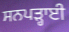
ਸਨਪੜ੍ਹਾਈ